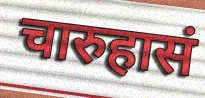
चारुहासं